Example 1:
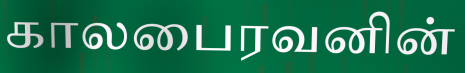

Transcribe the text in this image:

காலபைரவனின்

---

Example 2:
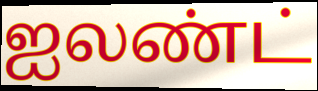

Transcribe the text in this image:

ஐலண்ட்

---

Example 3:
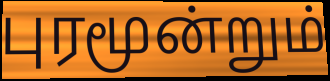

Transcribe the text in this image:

புரமூன்றும்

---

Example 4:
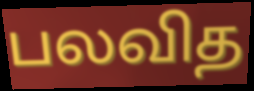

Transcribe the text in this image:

பலவித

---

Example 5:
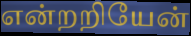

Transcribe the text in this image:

என்றறியேன்